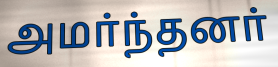
அமர்ந்தனர்